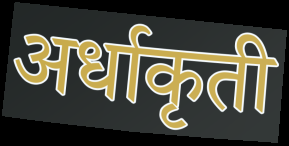
अर्धाकृती